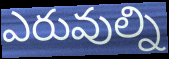
ఎరువుల్ని